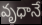
వృధానే